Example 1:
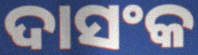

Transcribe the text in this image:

ଦାସଂକ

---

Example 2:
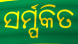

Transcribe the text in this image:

ସର୍ମ୍ପକିତ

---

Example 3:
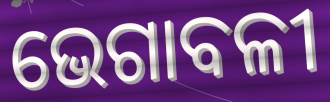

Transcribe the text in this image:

ଭେଗାବଳୀ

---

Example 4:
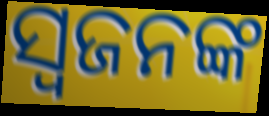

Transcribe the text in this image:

ସ୍ଵଜନଙ୍କ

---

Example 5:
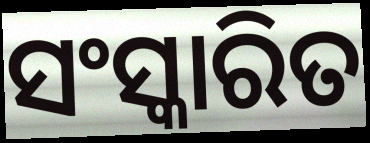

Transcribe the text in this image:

ସଂସ୍କାରିତ